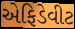
એફિડેવીટ